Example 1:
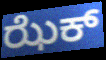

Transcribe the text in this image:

ಝೆಕ್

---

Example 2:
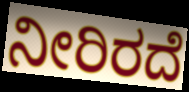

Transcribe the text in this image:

ನೀರಿರದೆ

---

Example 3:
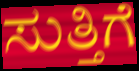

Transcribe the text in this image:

ಸುತ್ತಿಗೆ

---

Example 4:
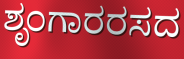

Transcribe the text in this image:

ಶೃಂಗಾರರಸದ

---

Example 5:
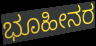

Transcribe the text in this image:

ಭೂಹೀನರ